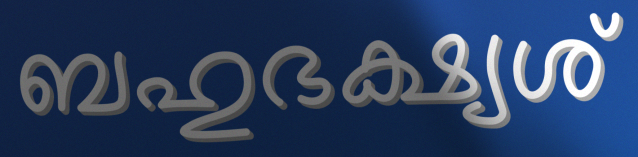
ബഹുഭക്ഷ്യശ്